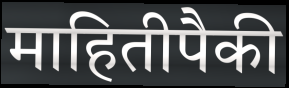
माहितीपैकी